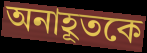
অনাহূতকে